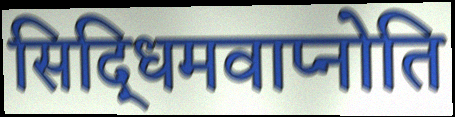
सिद्धिमवाप्नोति